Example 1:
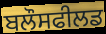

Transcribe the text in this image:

ਬਲੌਸਫੀਲਡ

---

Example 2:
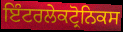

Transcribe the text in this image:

ਇੰਟਰਲੇਕਟ੍ਰੋਨਿਕਸ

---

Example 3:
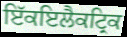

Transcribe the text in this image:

ਇੱਕਇਲੈਕਟ੍ਰਿਕ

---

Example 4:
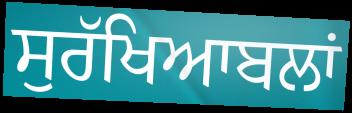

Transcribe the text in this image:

ਸੁਰੱਖਿਆਬਲਾਂ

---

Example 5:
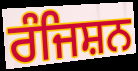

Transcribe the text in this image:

ਰੰਜਿਸ਼ਨ